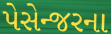
પેસેન્જરના